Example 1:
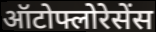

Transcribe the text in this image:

ऑटोफ्लोरेसेंस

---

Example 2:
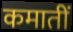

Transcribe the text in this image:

कमातीं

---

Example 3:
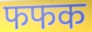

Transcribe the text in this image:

फफक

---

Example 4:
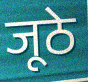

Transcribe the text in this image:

जूठे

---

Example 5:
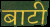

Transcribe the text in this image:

बाटी